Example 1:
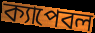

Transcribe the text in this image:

ক্যাপেবল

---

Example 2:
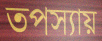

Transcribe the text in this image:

তপস্যায়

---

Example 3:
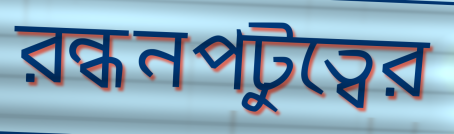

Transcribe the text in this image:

রন্ধনপটুত্বের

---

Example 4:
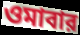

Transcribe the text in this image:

ওমাবার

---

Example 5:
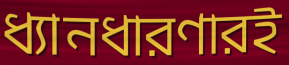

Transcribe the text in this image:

ধ্যানধারণারই